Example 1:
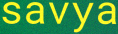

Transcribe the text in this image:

savya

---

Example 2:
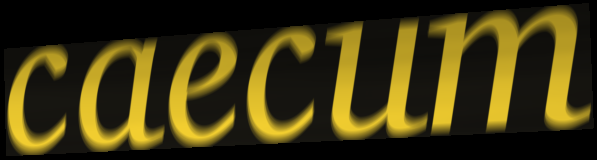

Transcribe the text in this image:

caecum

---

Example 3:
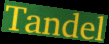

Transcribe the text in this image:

Tandel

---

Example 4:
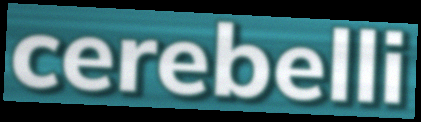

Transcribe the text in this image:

cerebelli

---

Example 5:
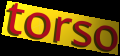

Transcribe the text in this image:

torso